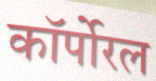
कॉर्पोरल